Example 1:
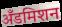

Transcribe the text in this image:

अँडमिशन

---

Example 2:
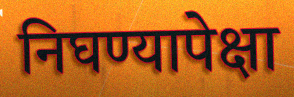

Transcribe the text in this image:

निघण्यापेक्षा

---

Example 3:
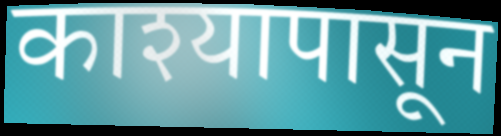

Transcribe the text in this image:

काश्यापासून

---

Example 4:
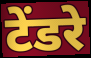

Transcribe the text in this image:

टेंडरे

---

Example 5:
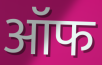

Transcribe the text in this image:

ऑफ